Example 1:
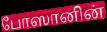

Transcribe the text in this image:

போஸானின்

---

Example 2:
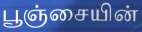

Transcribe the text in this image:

பூஞ்சையின்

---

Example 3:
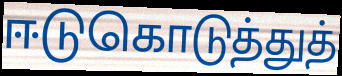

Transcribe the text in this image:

ஈடுகொடுத்துத்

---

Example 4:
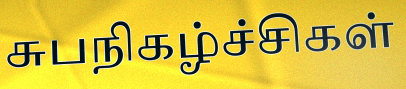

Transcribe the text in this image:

சுபநிகழ்ச்சிகள்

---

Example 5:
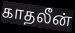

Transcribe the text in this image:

காதலீன்